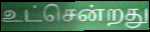
உட்சென்றது